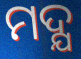
ମଦ୍ଯ